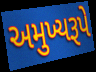
અમુખ્યરૂપે